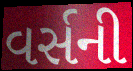
વર્સની